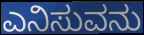
ಎನಿಸುವನು